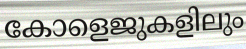
കോളെജുകളിലും